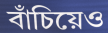
বাঁচিয়েও